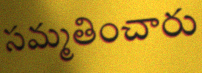
సమ్మతించారు